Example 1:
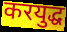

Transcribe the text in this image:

करयुद्ध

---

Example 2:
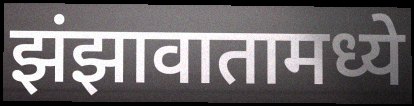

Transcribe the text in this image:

झंझावातामध्ये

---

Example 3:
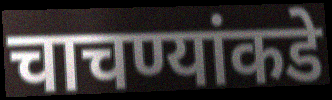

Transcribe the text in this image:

चाचण्यांकडे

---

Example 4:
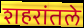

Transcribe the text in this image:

शहरांतले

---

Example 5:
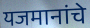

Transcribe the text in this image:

यजमानांचे